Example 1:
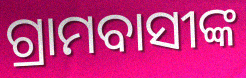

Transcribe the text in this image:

ଗ୍ରାମବାସୀଙ୍କ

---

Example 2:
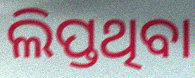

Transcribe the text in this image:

ଲିପ୍ତଥିବା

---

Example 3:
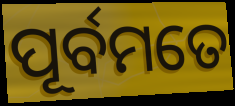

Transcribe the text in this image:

ପୂର୍ବମତେ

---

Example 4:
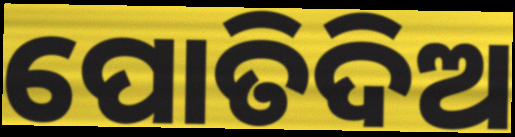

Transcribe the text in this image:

ପୋତିଦିଅ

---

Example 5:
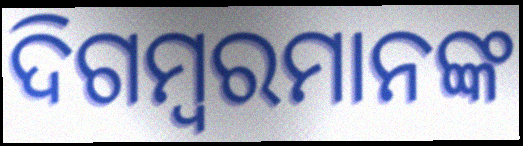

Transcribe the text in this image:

ଦିଗମ୍ବରମାନଙ୍କ